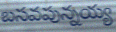
బసవపున్నయ్య